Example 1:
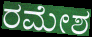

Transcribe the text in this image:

ರಮೇಶ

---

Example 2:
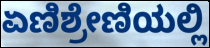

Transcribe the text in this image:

ಏಣಿಶ್ರೇಣಿಯಲ್ಲಿ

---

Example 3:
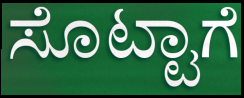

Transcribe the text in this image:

ಸೊಟ್ಟಾಗೆ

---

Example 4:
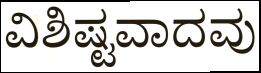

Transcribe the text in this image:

ವಿಶಿಷ್ಟವಾದವು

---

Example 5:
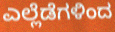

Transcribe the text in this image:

ಎಲ್ಲೆಡೆಗಳಿಂದ